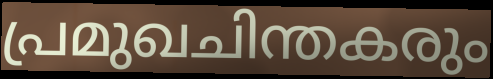
പ്രമുഖചിന്തകരും